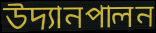
উদ্যানপালন